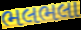
ભલભલા